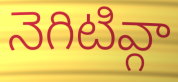
నెగిటివ్గా